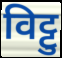
विट्टु